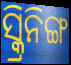
ସ୍କ୍ରିନିଙ୍ଗ